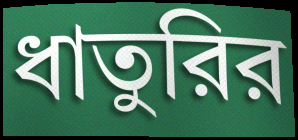
ধাতুরির